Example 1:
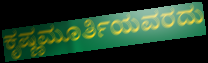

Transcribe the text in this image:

ಕೃಷ್ಣಮೂರ್ತಿಯವರದು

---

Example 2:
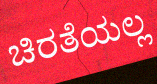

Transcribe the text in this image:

ಚಿರತೆಯಲ್ಲ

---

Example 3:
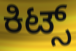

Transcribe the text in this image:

ಕಿಟ್ಸ್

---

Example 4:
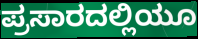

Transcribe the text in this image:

ಪ್ರಸಾರದಲ್ಲಿಯೂ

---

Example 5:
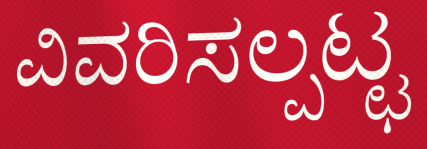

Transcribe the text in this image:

ವಿವರಿಸಲ್ಪಟ್ಟ